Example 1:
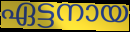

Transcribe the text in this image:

ഏട്ടനായ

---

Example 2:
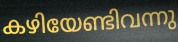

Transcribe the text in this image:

കഴിയേണ്ടിവന്നു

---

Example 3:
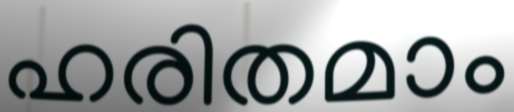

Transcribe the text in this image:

ഹരിതമാം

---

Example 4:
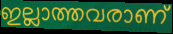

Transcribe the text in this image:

ഇല്ലാത്തവരാണ്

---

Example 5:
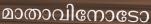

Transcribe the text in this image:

മാതാവിനോടോ